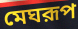
মেঘরূপ